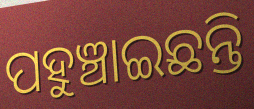
ପହୁଞ୍ଚାଇଛନ୍ତି